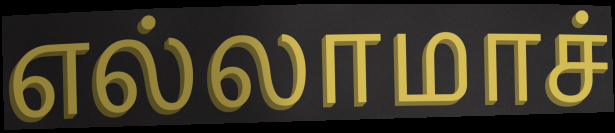
எல்லாமாச்